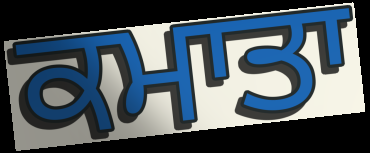
ਕਮਾਤਾ